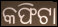
କଫିଟା